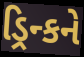
ડ્રિન્કને